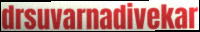
drsuvarnadivekar